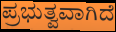
ಪ್ರಭುತ್ವವಾಗಿದೆ